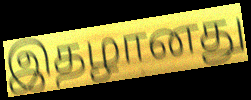
இதழானது